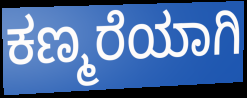
ಕಣ್ಮರೆಯಾಗಿ